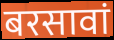
बरसावां